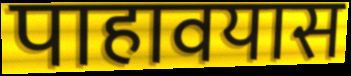
पाहावयास